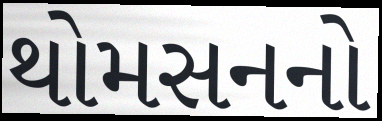
થોમસનનો